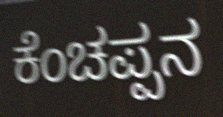
ಕೆಂಚಪ್ಪನ